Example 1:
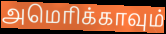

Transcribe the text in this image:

அமெரிக்காவும்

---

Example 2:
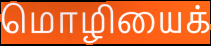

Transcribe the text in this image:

மொழியைக்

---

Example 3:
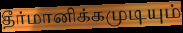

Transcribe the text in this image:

தீர்மானிக்கமுடியும்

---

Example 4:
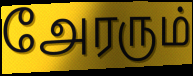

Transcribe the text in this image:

அேரரும்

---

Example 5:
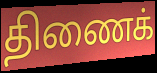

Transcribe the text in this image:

திணைக்